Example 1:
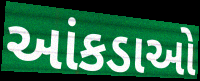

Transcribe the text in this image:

આંકડાઓ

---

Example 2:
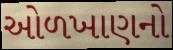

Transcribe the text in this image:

ઓળખાણનો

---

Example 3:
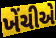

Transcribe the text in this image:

ખેંચીએ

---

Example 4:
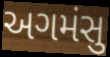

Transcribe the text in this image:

અગમંસુ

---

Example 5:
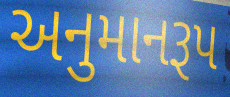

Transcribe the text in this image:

અનુમાનરૂપ